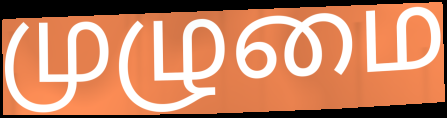
முழுமை